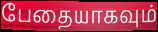
பேதையாகவும்